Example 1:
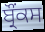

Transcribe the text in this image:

ਬ੍ਰੌਂਕਸ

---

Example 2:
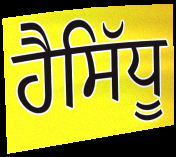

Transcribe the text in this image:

ਹੈਸਿੱਧੂ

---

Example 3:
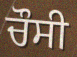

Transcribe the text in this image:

ਚੌਸੀ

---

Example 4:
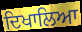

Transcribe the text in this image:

ਦਿਖਾਲਿਆ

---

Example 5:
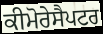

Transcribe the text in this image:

ਕੀਮੋਰੇਸੈਪਟਰ